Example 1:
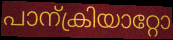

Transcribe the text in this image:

പാന്ക്രിയാറ്റോ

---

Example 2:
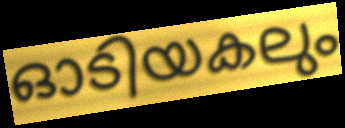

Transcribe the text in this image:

ഓടിയകലും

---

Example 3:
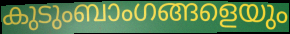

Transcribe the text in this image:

കുടുംബാംഗങ്ങളെയും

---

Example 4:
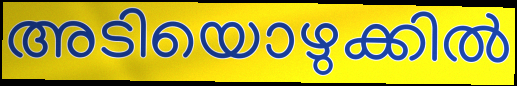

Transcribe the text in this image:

അടിയൊഴുക്കിൽ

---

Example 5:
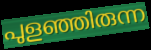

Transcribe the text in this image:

പുളഞ്ഞിരുന്ന